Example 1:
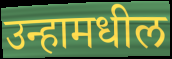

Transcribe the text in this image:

उन्हामधील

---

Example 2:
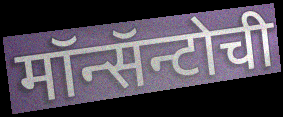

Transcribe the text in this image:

मॉन्सॅन्टोची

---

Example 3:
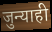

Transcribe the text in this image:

जुन्याही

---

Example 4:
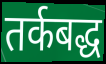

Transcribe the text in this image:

तर्कबद्ध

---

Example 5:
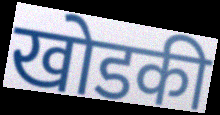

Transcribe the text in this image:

खोडकी